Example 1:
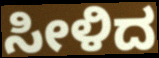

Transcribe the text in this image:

ಸೀಳಿದ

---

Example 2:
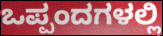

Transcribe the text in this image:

ಒಪ್ಪಂದಗಳಲ್ಲಿ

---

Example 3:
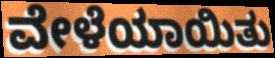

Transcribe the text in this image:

ವೇಳೆಯಾಯಿತು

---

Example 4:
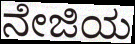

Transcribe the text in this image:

ನೇಜಿಯ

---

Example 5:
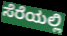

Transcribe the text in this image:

ಸೆರೆಯಲ್ಲಿ